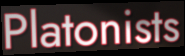
Platonists